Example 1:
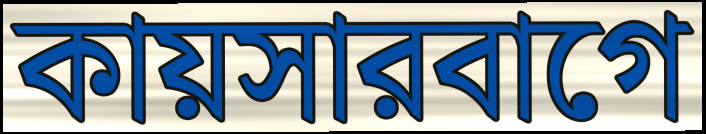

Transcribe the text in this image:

কায়সারবাগে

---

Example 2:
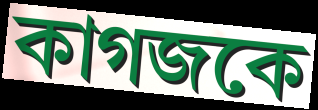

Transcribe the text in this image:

কাগজকে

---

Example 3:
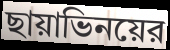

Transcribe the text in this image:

ছায়াভিনয়ের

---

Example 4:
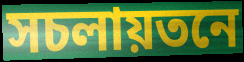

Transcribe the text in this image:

সচলায়তনে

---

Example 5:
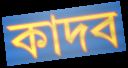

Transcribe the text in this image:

কাদব